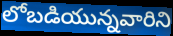
లోబడియున్నవారిని